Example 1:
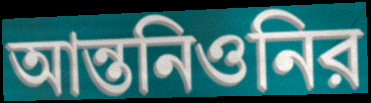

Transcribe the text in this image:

আন্তনিওনির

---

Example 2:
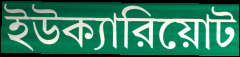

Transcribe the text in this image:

ইউক্যারিয়োট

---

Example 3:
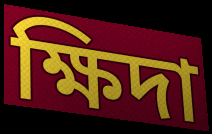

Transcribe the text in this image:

ক্ষিদা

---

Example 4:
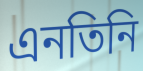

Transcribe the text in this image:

এনতিনি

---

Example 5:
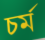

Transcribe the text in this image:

চর্ম